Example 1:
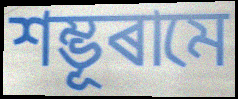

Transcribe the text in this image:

শম্ভূৰামে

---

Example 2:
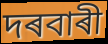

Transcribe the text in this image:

দৰবাৰী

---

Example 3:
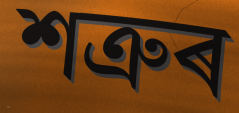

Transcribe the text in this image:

শত্ৰুৰ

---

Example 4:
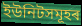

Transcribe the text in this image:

ইউনিটসমূহৰ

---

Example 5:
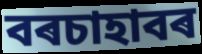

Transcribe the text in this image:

বৰচাহাবৰ